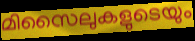
മിസൈലുകളുടെയും